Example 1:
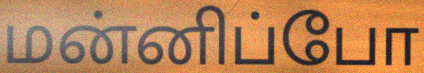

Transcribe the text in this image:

மன்னிப்போ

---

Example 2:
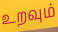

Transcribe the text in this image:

உறவும்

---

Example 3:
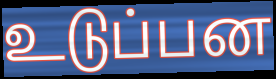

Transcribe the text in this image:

உடுப்பன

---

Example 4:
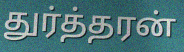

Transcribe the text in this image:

துர்த்தரன்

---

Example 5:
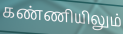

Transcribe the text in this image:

கண்ணியிலும்